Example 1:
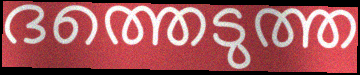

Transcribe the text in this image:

ദത്തെടുത്ത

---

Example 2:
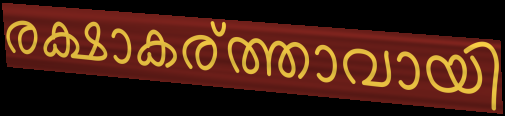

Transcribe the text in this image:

രക്ഷാകര്ത്താവായി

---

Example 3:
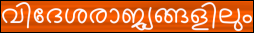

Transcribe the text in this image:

വിദേശരാജ്യങ്ങളിലും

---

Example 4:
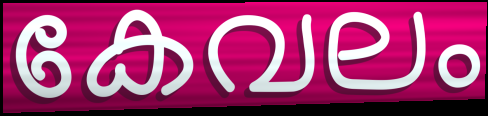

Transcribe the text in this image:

കേവലം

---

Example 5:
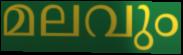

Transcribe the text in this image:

മലവും